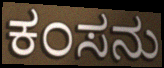
ಕಂಸನು